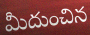
మీదుంచిన